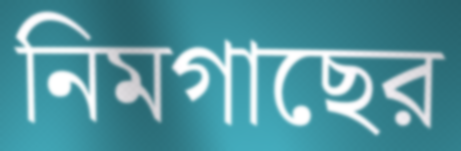
নিমগাছের